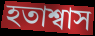
হতাশ্বাস